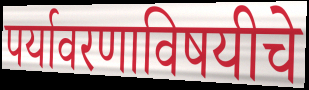
पर्यावरणाविषयीचे